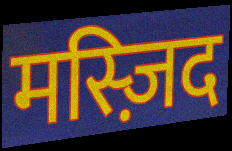
मस्ज़िद